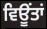
ਵਿਊਂਤਾਂ